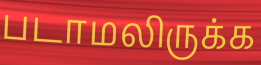
படாமலிருக்க